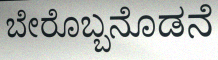
ಬೇರೊಬ್ಬನೊಡನೆ